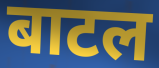
बाटल